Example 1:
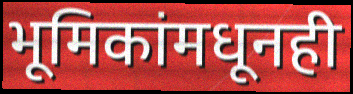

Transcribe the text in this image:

भूमिकांमधूनही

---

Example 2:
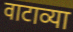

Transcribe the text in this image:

वाटाव्या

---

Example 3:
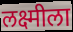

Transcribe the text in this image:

लक्ष्मीला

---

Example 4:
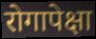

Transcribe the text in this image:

रोगापेक्षा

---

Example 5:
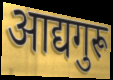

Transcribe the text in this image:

आद्यगुरू